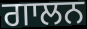
ਗਾਲਨ